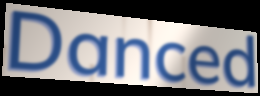
Danced